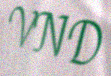
VND